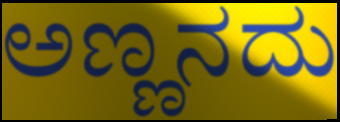
ಅಣ್ಣನದು